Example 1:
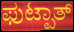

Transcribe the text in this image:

ಫುಟ್ಪಾತ್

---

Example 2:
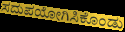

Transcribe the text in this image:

ಸದುಪಯೋಗಿಸಿಕೊಂಡು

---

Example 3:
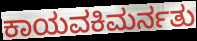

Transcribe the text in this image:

ಕಾಯವಕಿಮರ್ನತು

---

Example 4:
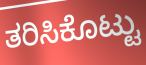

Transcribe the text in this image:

ತರಿಸಿಕೊಟ್ಟು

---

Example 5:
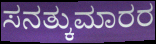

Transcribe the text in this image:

ಸನತ್ಕುಮಾರರ